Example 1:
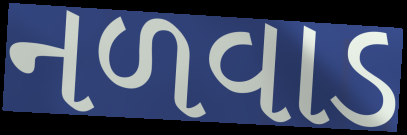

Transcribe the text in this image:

નળવાડ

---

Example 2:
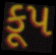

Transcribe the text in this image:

કૂપ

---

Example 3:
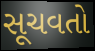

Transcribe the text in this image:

સૂચવતો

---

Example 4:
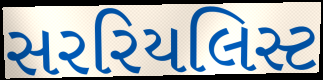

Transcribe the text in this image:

સરરિયલિસ્ટ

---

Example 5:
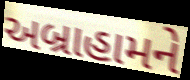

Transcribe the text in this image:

અબ્રાહામને